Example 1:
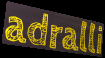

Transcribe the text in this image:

adralli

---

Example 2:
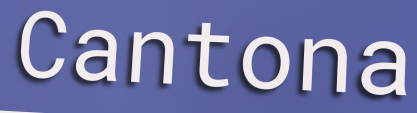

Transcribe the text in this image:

Cantona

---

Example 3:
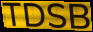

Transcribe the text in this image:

TDSB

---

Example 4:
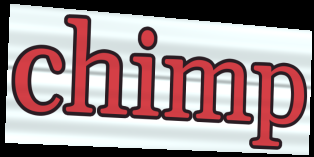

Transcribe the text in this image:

chimp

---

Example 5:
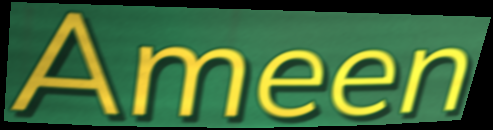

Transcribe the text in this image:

Ameen